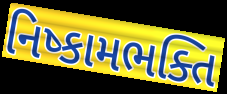
નિષ્કામભક્તિ